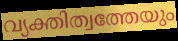
വ്യക്തിത്വത്തേയും